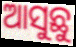
ଆସୁଛୁ